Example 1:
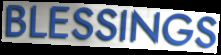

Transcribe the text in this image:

BLESSINGS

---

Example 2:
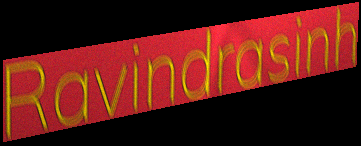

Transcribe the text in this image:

Ravindrasinh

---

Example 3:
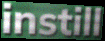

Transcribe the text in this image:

instill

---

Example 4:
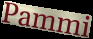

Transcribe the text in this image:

Pammi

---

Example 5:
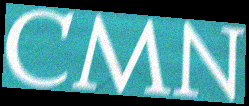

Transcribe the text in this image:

CMN